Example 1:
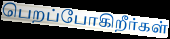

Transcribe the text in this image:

பெறப்போகிறீர்கள்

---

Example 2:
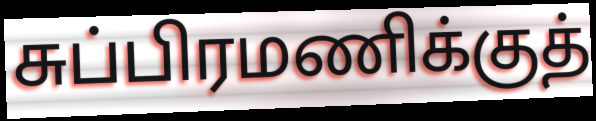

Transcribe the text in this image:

சுப்பிரமணிக்குத்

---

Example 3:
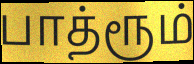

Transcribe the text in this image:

பாத்ரூம்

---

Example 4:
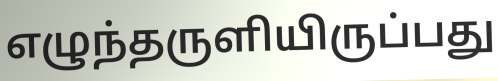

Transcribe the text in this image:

எழுந்தருளியிருப்பது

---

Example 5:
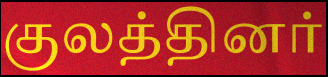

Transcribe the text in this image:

குலத்தினர்